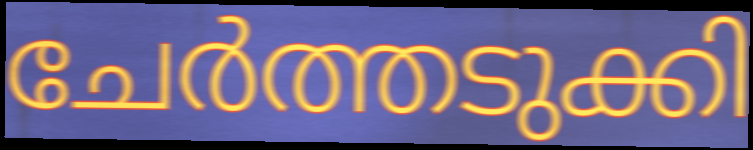
ചേർത്തടുക്കി